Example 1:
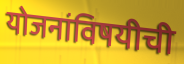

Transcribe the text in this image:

योजनांविषयीची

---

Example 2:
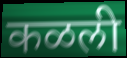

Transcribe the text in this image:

कळली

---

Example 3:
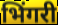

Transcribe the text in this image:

भिंगरी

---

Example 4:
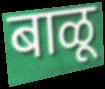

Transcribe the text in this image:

बाळू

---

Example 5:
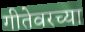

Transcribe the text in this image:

गीतेवरच्या